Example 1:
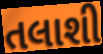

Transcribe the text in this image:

તલાશી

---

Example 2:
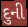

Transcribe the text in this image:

દુની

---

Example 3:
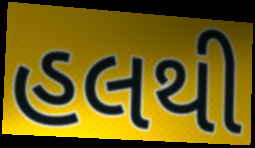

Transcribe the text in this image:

હલથી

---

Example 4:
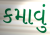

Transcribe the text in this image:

કમાવું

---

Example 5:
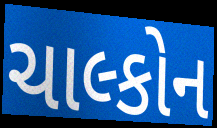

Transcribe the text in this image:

ચાલ્કોન